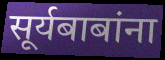
सूर्यबाबांना